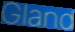
Gland